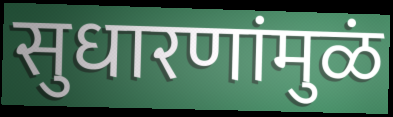
सुधारणांमुळं